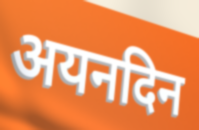
अयनदिन